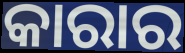
କାରାର